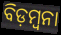
ବିଡ଼ମ୍ୱନା